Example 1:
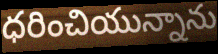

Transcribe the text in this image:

ధరించియున్నాను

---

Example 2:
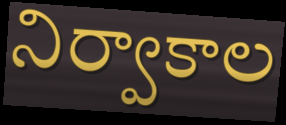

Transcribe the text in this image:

నిర్వాకాల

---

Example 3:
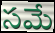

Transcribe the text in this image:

సమే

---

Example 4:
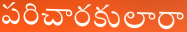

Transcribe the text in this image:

పరిచారకులారా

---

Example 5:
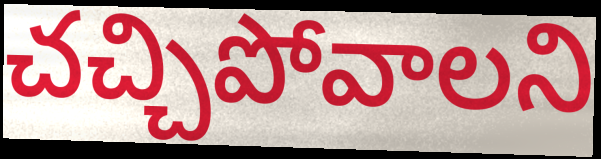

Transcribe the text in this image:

చచ్చిపోవాలని